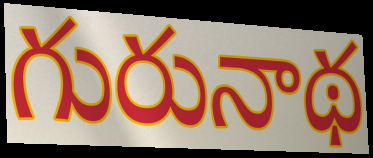
గురునాథ